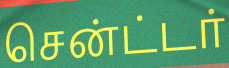
சென்ட்டர்